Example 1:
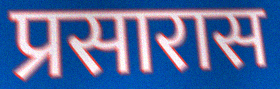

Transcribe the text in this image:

प्रसारास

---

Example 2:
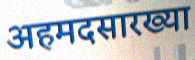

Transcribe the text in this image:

अहमदसारख्या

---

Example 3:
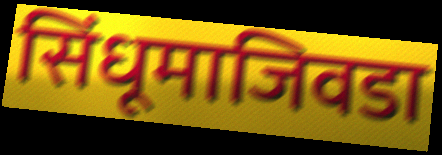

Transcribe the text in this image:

सिंधूमाजिवडा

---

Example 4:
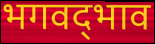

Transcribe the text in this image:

भगवद्भाव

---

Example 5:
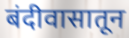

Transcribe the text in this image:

बंदीवासातून